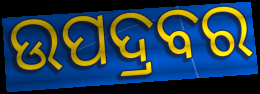
ଉପଦ୍ରବର